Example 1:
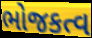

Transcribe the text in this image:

ભોજકત્વ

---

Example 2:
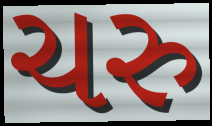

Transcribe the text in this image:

ચરુ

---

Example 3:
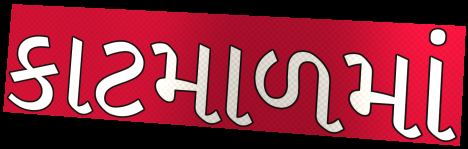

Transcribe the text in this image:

કાટમાળમાં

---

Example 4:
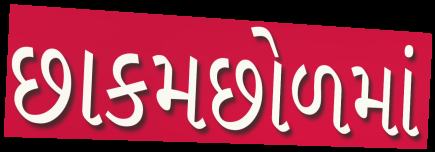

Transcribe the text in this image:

છાકમછોળમાં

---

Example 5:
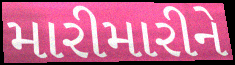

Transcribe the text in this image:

મારીમારીને